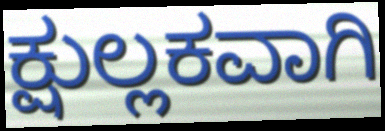
ಕ್ಷುಲ್ಲಕವಾಗಿ